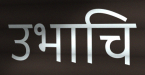
उभाचि